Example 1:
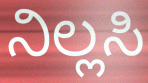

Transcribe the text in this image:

ನಿಲ್ಲಸಿ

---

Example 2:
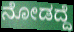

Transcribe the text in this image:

ನೋಡದ್ದೆ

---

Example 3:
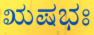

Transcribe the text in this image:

ಋಷಭಃ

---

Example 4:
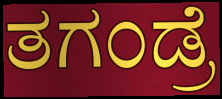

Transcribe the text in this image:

ತಗಂಡ್ರೆ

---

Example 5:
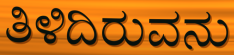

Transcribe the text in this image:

ತಿಳಿದಿರುವನು